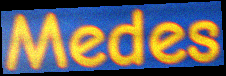
Medes